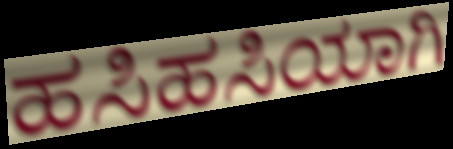
ಹಸಿಹಸಿಯಾಗಿ